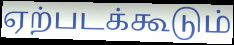
ஏற்படக்கூடும்